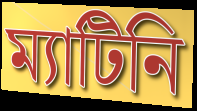
ম্যাটিনি